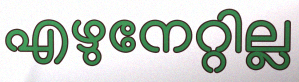
എഴുനേറ്റില്ല